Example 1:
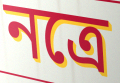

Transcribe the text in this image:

নত্রে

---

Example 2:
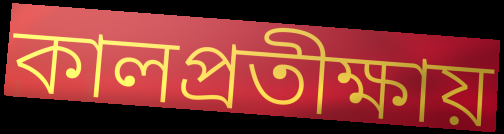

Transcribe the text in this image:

কালপ্রতীক্ষায়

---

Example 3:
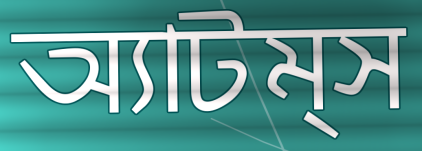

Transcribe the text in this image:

অ্যাটম্‌স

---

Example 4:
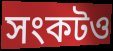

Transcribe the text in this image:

সংকটও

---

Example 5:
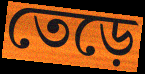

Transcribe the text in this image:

তেড়ে